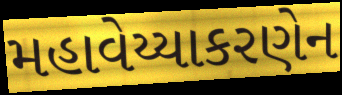
મહાવેય્યાકરણેન